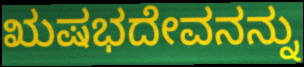
ಋಷಭದೇವನನ್ನು